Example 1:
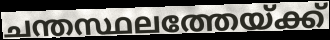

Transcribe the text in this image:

ചന്തസ്ഥലത്തേയ്ക്ക്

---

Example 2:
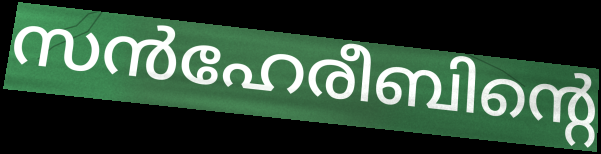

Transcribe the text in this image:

സൻഹേരീബിന്റെ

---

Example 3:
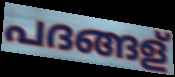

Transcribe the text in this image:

പദങ്ങള്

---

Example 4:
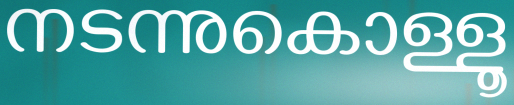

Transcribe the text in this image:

നടന്നുകൊള്ളൂ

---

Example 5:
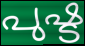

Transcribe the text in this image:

പുഷ്ട